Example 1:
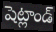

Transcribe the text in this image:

షెట్లాండ్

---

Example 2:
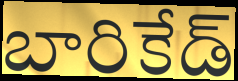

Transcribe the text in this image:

బారికేడ్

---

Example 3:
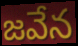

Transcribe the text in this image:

జవేన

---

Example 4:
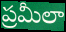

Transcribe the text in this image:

ప్రమీలా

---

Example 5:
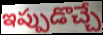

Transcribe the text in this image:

ఇప్పుడొచ్చే